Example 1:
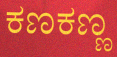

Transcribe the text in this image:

ಕಣಕಣ್ಣ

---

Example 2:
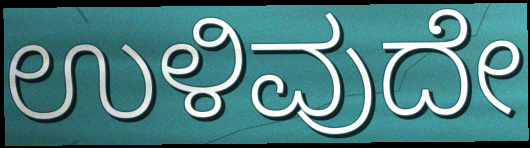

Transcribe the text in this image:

ಉಳಿವುದೇ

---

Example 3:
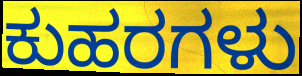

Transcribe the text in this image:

ಕುಹರಗಳು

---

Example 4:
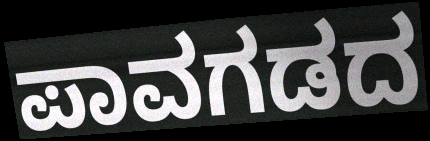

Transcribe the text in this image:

ಪಾವಗಡದ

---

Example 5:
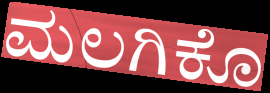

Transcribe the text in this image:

ಮಲಗಿಕೊ